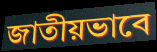
জাতীয়ভাবে